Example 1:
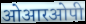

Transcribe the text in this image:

ओआरओपी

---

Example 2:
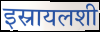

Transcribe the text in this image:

इस्रायलशी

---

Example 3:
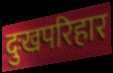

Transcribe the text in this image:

दुःखपरिहार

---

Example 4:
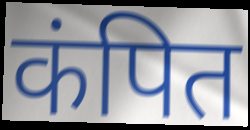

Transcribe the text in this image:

कंपित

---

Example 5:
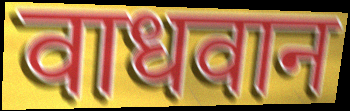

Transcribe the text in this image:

वाधवान